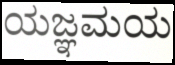
ಯಜ್ಞಮಯ